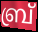
ബ്ര്